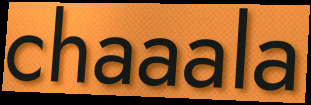
chaaala